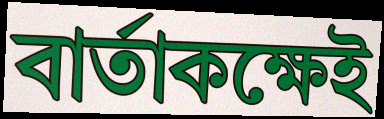
বার্তাকক্ষেই